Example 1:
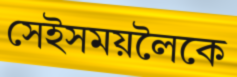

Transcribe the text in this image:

সেইসময়লৈকে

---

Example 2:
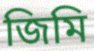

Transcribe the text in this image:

জিমি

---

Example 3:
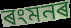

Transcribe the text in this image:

ৰংমনৰ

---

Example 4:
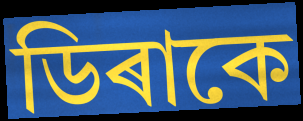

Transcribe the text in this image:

ডিৰাকে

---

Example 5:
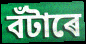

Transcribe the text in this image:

বঁটাৰে